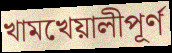
খামখেয়ালীপূর্ণ